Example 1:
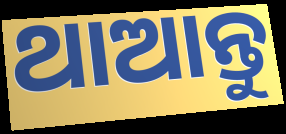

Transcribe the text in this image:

ଥାଆନ୍ତୁ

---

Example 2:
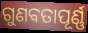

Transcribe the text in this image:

ଗୁଣବତାପୂର୍ଣ୍ଣ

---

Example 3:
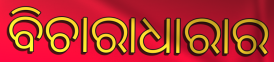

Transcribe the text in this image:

ବିଚାରାଧାରାର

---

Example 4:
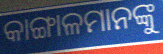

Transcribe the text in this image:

କାଙ୍ଗାଳମାନଙ୍କୁ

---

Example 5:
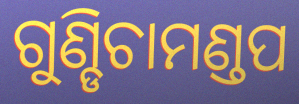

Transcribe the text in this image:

ଗୁଣ୍ଡିଚାମଣ୍ଡପ